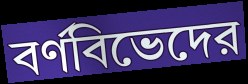
বর্ণবিভেদের